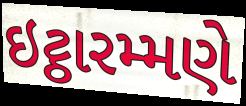
ઇટ્ઠારમ્મણે